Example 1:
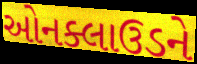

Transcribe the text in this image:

ઓનક્લાઉડને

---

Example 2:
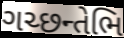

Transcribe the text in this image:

ગચ્છન્તેભિ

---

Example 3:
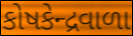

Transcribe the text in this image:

કોષકેન્દ્રવાળા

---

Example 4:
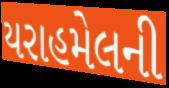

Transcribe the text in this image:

યરાહમેલની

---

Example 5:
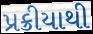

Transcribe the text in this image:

પ્રક્રીયાથી